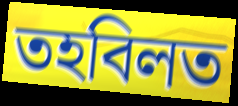
তহবিলত